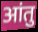
आंतु